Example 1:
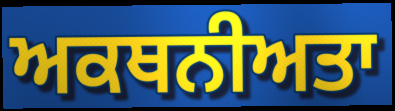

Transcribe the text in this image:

ਅਕਥਨੀਅਤਾ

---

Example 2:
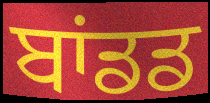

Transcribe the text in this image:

ਬਾਂਡਡ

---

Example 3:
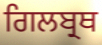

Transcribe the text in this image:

ਗਿਲਬ੍ਰਥ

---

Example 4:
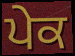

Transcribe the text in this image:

ਪੇਕ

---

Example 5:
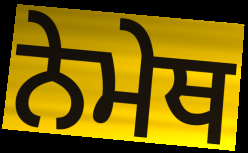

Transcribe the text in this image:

ਨੇਮੇਥ